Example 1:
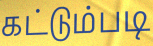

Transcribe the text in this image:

கட்டும்படி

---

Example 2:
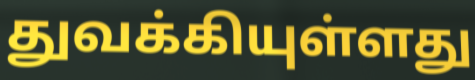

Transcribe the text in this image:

துவக்கியுள்ளது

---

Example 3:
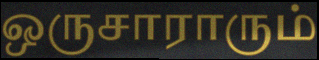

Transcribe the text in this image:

ஒருசாராரும்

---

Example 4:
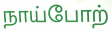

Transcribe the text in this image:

நாய்போற்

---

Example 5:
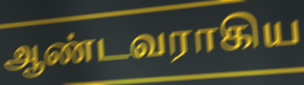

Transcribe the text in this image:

ஆண்டவராகிய